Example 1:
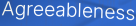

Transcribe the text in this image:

Agreeableness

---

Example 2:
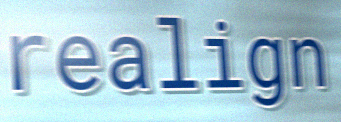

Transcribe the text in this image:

realign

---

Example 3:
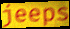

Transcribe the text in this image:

jeeps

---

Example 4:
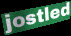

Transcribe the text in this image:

jostled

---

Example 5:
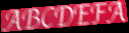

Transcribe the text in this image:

ABCDEFA